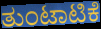
ತುಂಟಾಟಿಕೆ